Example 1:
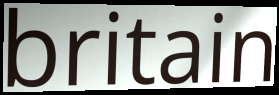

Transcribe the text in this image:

britain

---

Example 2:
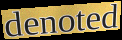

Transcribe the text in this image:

denoted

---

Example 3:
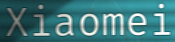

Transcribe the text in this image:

Xiaomei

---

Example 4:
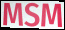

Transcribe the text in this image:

MSM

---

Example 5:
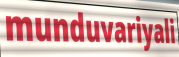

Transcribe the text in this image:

munduvariyali